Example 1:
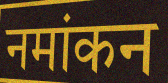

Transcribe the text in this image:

नमांकन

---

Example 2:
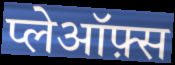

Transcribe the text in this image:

प्लेऑफ़्स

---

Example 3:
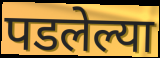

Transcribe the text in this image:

पडलेल्या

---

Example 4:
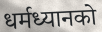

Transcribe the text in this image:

धर्मध्यानको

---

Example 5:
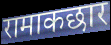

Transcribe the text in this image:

रामाकछार